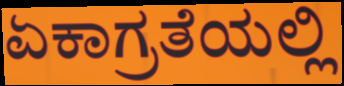
ಏಕಾಗ್ರತೆಯಲ್ಲಿ